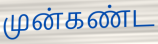
முன்கண்ட